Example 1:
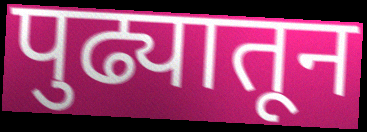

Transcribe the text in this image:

पुढ्यातून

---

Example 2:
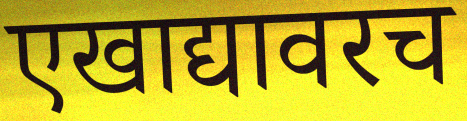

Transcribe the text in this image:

एखाद्यावरच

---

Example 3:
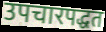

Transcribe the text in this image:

उपचारपद्धत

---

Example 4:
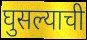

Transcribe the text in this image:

घुसल्याची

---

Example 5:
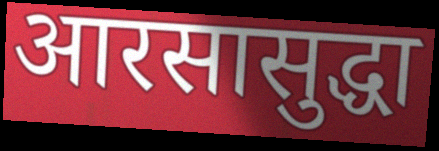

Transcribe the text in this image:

आरसासुद्धा